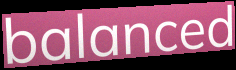
balanced